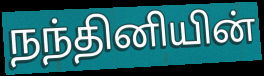
நந்தினியின்